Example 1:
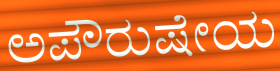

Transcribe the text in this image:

ಅಪೌರುಷೇಯ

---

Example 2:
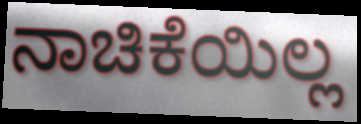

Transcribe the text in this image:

ನಾಚಿಕೆಯಿಲ್ಲ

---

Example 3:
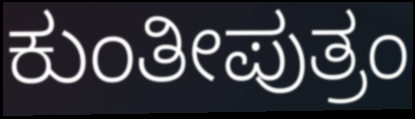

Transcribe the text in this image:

ಕುಂತೀಪುತ್ರಂ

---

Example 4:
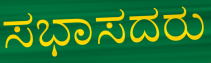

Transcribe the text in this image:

ಸಭಾಸದರು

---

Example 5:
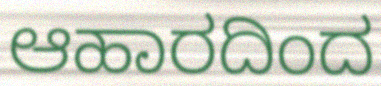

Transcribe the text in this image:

ಆಹಾರದಿಂದ